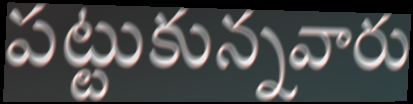
పట్టుకున్నవారు